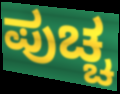
ಪುಚ್ಚ